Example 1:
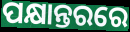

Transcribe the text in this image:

ପକ୍ଷାନ୍ତରରେ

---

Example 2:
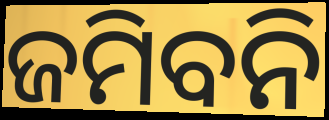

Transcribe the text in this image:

ଜମିବନି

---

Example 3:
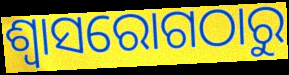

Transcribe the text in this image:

ଶ୍ୱାସରୋଗଠାରୁ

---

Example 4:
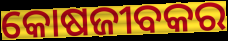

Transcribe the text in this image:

କୋଷଜୀବକର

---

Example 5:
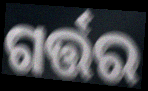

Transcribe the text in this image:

ଗର୍ତ୍ତର